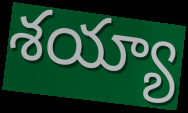
శయ్యా